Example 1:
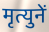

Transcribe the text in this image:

मृत्युनें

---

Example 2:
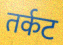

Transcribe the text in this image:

तर्कट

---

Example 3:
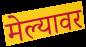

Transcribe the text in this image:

मेल्यावर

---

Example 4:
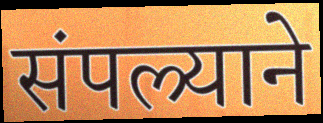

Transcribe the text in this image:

संपल्याने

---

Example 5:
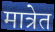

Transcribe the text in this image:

मात्रेत